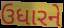
ઉધારને